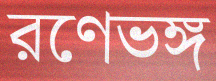
রণেভঙ্গ